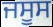
ਜਸੂਸ